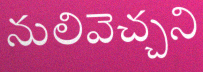
నులివెచ్చని